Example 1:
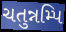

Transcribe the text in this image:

ચતુન્નમ્પિ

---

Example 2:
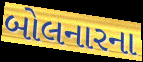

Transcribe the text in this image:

બોલનારના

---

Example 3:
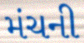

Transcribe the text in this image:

મંચની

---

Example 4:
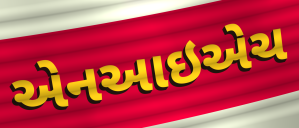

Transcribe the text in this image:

એનઆઇએચ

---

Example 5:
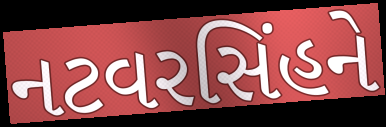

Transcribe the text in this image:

નટવરસિંહને